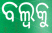
ବଲ୍ବକୁ